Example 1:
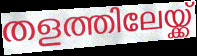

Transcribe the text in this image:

തളത്തിലേയ്ക്ക്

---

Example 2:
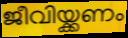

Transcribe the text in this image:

ജീവിയ്ക്കണം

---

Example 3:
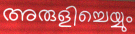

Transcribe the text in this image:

അരുളിച്ചെയ്യും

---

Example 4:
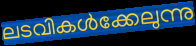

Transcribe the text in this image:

ലടവികൾക്കേലുന്നു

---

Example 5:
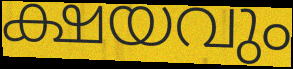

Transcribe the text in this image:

ക്ഷയവും